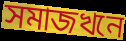
সমাজখনে